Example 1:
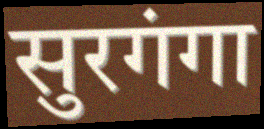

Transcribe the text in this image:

सुरगंगा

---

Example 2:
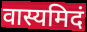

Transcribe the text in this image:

वास्यमिदं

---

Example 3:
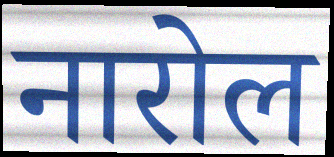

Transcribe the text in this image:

नारोल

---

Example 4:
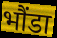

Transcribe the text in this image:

भौंडा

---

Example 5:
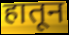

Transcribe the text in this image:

हातून